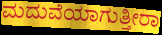
ಮದುವೆಯಾಗುತ್ತೀರಾ